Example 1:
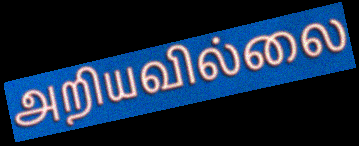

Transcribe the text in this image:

அறியவில்லை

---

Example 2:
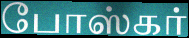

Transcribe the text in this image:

போஸ்கர்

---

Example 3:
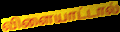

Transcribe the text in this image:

விளையாட்டால்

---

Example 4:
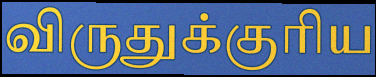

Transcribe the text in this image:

விருதுக்குரிய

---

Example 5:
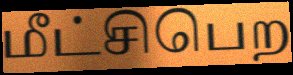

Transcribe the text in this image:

மீட்சிபெற